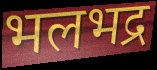
भलभद्र